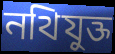
নথিযুক্ত